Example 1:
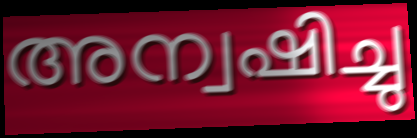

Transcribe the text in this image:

അന്വഷിച്ചു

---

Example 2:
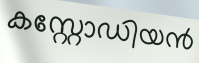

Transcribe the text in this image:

കസ്റ്റോഡിയൻ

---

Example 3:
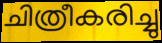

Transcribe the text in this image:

ചിത്രീകരിച്ചു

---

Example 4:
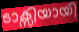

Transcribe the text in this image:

ടാക്സിയായി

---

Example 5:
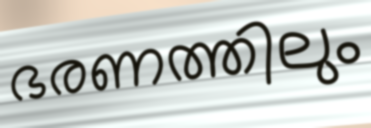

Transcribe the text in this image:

ഭരണത്തിലും